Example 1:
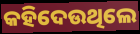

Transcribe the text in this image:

କହିଦେଉଥିଲେ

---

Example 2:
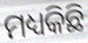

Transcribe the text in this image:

ମଧ୍ୟକିଛି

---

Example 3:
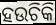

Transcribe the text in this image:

ହଉଚିକି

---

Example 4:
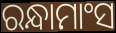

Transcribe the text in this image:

ରନ୍ଧାମାଂସ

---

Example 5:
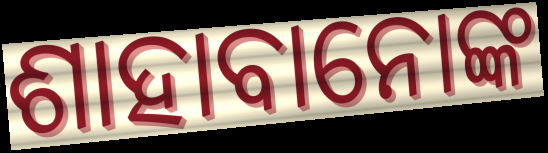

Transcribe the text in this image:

ଶାହାବାନୋଙ୍କ